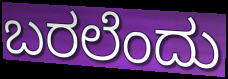
ಬರಲೆಂದು